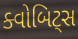
ક્વોબિટ્સ